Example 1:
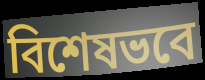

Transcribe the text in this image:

বিশেষভবে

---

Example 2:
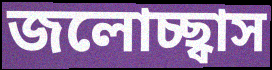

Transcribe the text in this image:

জলোচ্ছ্বাস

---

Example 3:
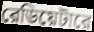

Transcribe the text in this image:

রেডিয়েটারে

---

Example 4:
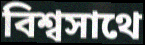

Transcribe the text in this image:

বিশ্বসাথে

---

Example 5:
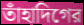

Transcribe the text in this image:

তাঁহাদিগের